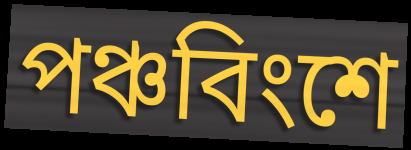
পঞ্চবিংশে